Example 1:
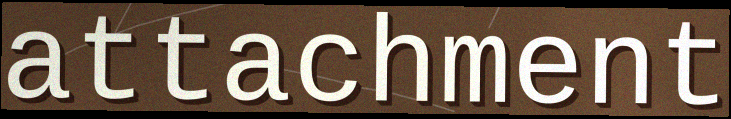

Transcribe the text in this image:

attachment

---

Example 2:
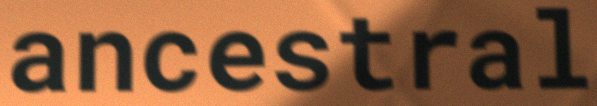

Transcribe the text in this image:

ancestral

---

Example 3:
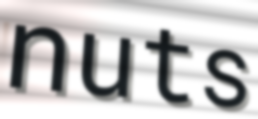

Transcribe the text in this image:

nuts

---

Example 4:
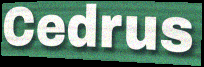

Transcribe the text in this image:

Cedrus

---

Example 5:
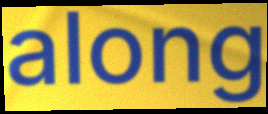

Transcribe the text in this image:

along